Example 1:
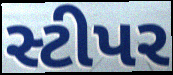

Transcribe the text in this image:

સ્ટીપર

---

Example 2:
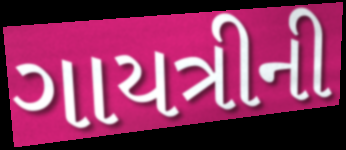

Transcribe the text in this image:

ગાયત્રીની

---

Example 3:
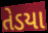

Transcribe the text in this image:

તેડયા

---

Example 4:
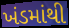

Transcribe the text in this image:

ખંડમાંથી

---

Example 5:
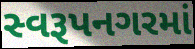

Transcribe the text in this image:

સ્વરૂપનગરમાં